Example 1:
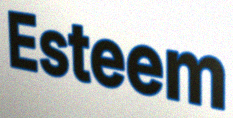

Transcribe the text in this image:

Esteem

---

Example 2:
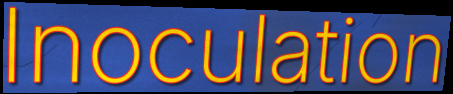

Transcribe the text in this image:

Inoculation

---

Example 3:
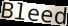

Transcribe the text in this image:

Bleed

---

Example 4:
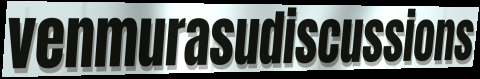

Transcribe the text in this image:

venmurasudiscussions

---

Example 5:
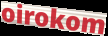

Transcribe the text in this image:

oirokom